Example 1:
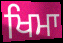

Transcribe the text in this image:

ਖਿਮਾ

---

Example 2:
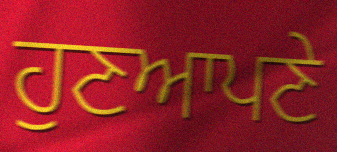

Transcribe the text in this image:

ਹੁਣਆਪਣੇ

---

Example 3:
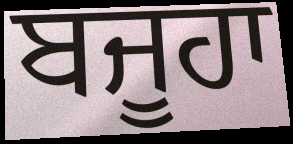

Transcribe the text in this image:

ਬਜੂਹਾ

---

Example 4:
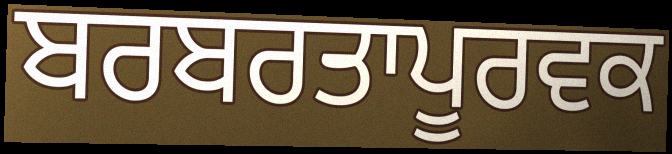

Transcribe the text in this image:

ਬਰਬਰਤਾਪੂਰਵਕ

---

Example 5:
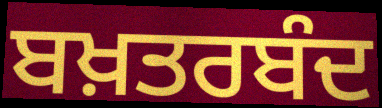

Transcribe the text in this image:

ਬਖ਼ਤਰਬੰਦ